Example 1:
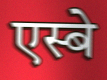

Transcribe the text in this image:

एस्बे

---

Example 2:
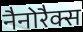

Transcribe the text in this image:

नैनोरैक्स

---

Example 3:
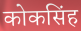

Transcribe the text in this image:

कोकसिंह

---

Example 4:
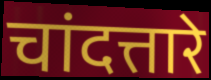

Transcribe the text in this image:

चांदत्तारे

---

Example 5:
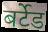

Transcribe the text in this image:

बर्टेड